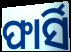
ଫାର୍ସି